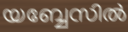
യബ്ബേസിൽ